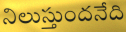
నిలుస్తుందనేది